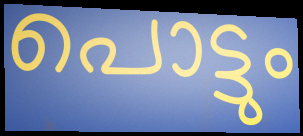
പൊട്ടും